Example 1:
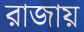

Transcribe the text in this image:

রাজায়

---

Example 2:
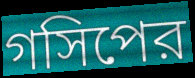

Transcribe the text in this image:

গসিপের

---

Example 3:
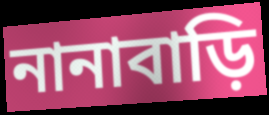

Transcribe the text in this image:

নানাবাড়ি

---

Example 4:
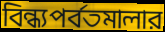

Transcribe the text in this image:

বিন্ধ্যপর্বতমালার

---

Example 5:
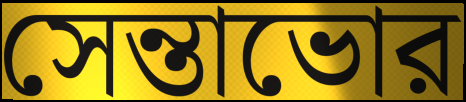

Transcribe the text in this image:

সেন্তাভোর